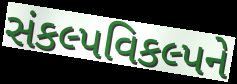
સંકલ્પવિકલ્પને